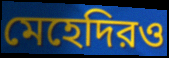
মেহেদিরও